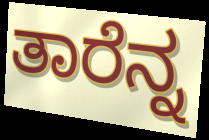
ತಾರೆನ್ನ